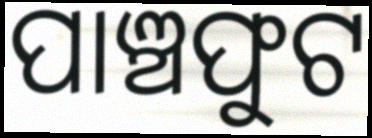
ପାଞ୍ଚଫୁଟ